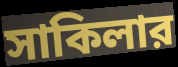
সাকিলার